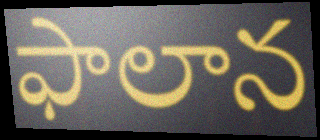
ఫాలాన